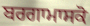
ਬਰਗਾਮਾਸਕੋ